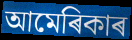
আমেৰিকাৰ